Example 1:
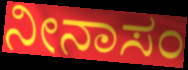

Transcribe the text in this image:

ನೀನಾಸಂ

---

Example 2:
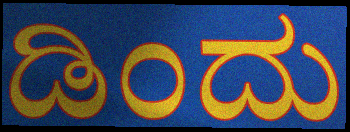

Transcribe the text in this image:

ಡಿಂದು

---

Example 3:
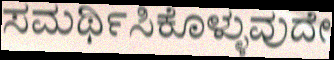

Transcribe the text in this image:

ಸಮರ್ಥಿಸಿಕೊಳ್ಳುವುದೇ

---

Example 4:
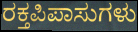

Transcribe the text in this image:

ರಕ್ತಪಿಪಾಸುಗಳು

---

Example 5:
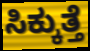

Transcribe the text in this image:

ಸಿಕ್ಕುತ್ತೆ